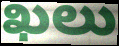
ఖలు